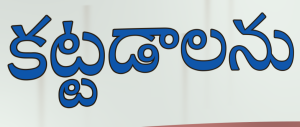
కట్టడాలను